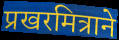
प्रखरमित्राने